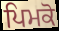
ਪਿਮਕੋ